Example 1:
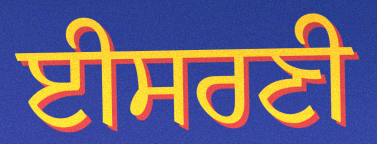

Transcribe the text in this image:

ਈਸਰਣੀ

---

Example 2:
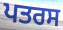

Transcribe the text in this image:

ਪਤਰਸ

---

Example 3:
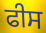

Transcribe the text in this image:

ਫੀਸ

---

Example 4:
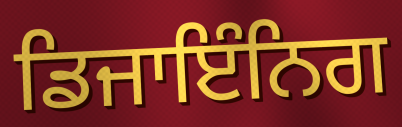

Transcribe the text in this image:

ਡਿਜਾਇੰਨਿਗ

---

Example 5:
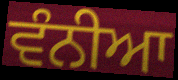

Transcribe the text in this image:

ਵੰਨੀਆ